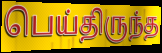
பெய்திருந்த